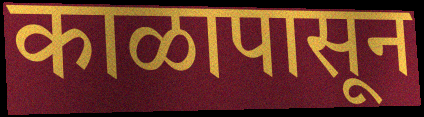
काळापासून